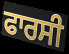
ਫਾਰਸੀ